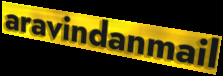
aravindanmail